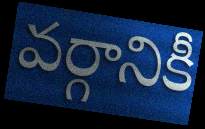
వర్గానికీ